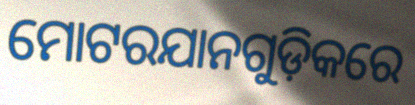
ମୋଟରଯାନଗୁଡ଼ିକରେ